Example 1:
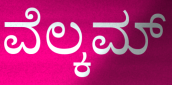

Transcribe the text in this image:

ವೆಲ್ಕಮ್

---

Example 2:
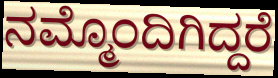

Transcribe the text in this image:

ನಮ್ಮೊಂದಿಗಿದ್ದರೆ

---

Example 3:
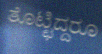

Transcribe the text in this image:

ತೊಟ್ಟಿದ್ದರೂ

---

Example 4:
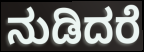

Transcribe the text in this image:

ನುಡಿದರೆ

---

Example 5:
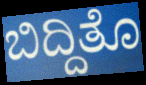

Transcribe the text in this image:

ಬಿದ್ದಿತೊ